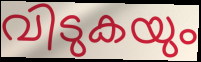
വിടുകയും